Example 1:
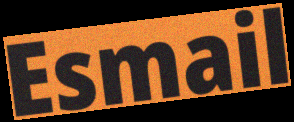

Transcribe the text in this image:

Esmail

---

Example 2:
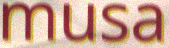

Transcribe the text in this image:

musa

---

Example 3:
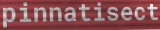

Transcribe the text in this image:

pinnatisect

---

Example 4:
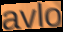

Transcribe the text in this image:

avlo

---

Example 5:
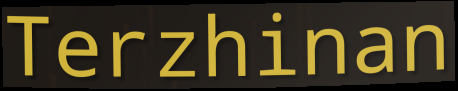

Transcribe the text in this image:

Terzhinan